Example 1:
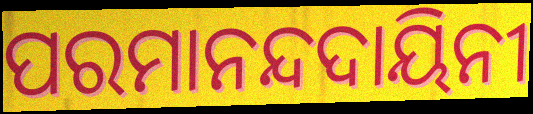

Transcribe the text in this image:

ପରମାନନ୍ଦଦାୟିନୀ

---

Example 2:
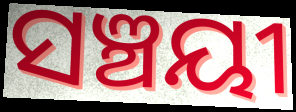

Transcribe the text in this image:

ସଞ୍ଚୟୀ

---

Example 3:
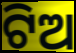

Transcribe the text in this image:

ଟିଅ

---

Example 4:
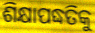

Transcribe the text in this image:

ଶିକ୍ଷାପଦ୍ଧତିକୁ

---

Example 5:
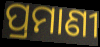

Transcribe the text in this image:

ପ୍ରମାଣୀ